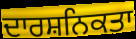
ਦਾਰਸ਼ਨਿਕਤਾ